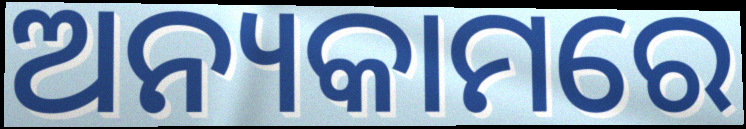
ଅନ୍ୟକାମରେ